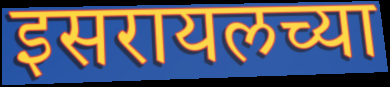
इसरायलच्या